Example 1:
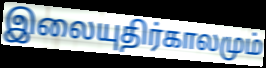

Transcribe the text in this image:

இலையுதிர்காலமும்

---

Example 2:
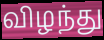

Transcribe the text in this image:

விழந்து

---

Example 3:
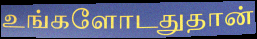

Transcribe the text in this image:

உங்களோடதுதான்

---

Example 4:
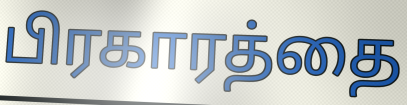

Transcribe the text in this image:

பிரகாரத்தை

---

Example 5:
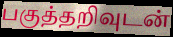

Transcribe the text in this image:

பகுத்தறிவுடன்